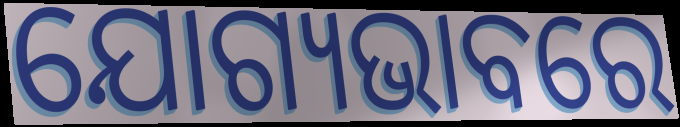
ଯୋଗ୍ୟଭାବରେ